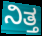
ನಿತ್ತ